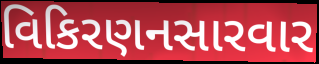
વિકિરણનસારવાર